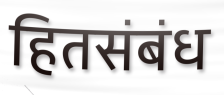
हितसंबंध